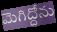
మెగిద్దోను